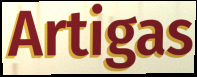
Artigas